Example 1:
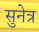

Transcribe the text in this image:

सुनेत्र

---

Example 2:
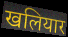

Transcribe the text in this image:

खलियार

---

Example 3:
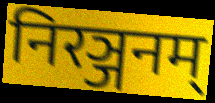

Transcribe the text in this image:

निरञ्जनम्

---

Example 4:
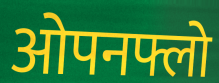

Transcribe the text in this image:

ओपनफ्लो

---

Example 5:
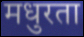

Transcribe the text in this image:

मधुरता